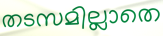
തടസമില്ലാതെ